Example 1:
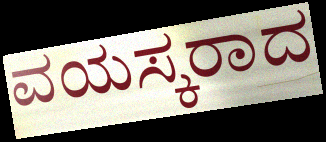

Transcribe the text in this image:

ವಯಸ್ಕರಾದ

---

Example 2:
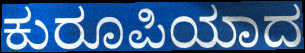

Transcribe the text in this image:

ಕುರೂಪಿಯಾದ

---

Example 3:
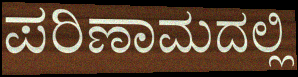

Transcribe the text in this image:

ಪರಿಣಾಮದಲ್ಲಿ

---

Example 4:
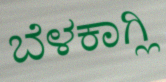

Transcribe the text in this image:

ಬೆಳಕಾಗ್ಲಿ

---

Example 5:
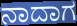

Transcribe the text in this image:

ನಾದಾಗ